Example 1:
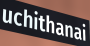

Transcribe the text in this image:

uchithanai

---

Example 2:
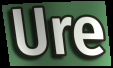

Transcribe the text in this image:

Ure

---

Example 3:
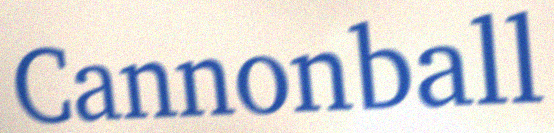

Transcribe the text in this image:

Cannonball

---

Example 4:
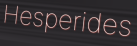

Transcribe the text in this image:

Hesperides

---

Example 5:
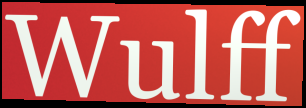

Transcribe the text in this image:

Wulff